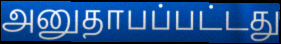
அனுதாபப்பட்டது